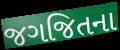
જગજિતના